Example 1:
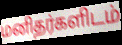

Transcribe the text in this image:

மனிதர்களிடம்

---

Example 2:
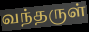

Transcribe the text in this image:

வந்தருள்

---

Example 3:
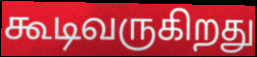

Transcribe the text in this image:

கூடிவருகிறது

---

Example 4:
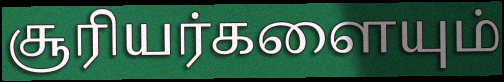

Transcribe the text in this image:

சூரியர்களையும்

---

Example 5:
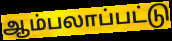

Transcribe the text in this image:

ஆம்பலாப்பட்டு